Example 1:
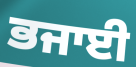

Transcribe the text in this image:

ਭਜਾਈ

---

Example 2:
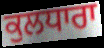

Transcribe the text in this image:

ਕੁਲਧਾਰਾ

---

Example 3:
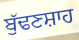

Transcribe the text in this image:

ਬੁੱਢਣਸ਼ਾਹ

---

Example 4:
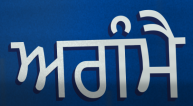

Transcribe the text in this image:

ਅਗੰਮੈ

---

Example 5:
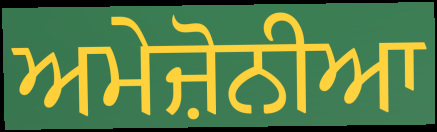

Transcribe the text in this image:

ਅਮੇਜ਼ੋਨੀਆ